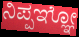
ನಿಪ್ಪಞ್ಞೋ